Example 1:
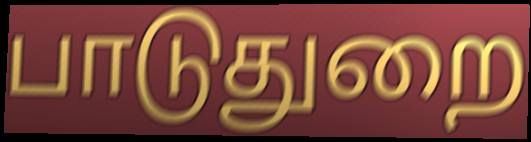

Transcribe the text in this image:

பாடுதுறை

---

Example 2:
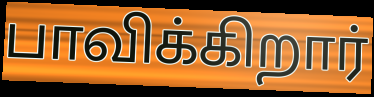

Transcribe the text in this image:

பாவிக்கிறார்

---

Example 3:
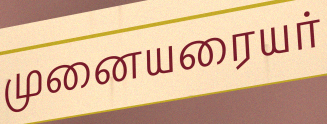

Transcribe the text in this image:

முனையரையர்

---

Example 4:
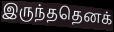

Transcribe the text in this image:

இருந்ததெனக்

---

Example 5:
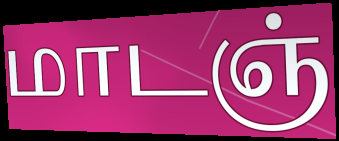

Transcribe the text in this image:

மாடஞ்